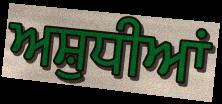
ਅਸ਼ੁਧੀਆਂ